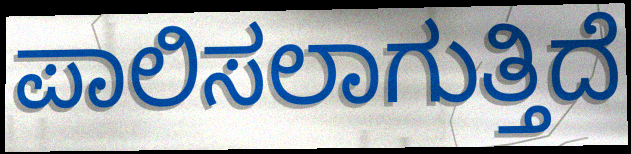
ಪಾಲಿಸಲಾಗುತ್ತಿದೆ